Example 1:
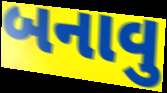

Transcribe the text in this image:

બનાવુ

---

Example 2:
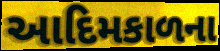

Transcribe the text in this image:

આદિમકાળના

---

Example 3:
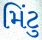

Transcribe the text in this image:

મિંટુ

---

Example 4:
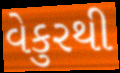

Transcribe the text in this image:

વેકુરથી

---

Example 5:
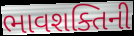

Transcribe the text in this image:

ભાવશક્તિની